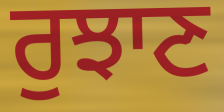
ਰੁਝਾਣ